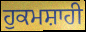
ਹੁਕਮਸ਼ਾਹੀ